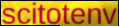
scitotenv